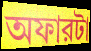
অফারটা